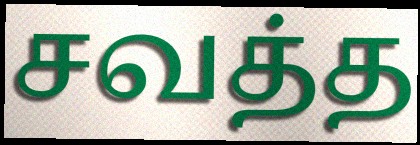
சவத்த